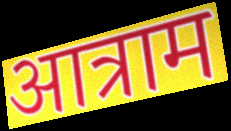
आत्राम